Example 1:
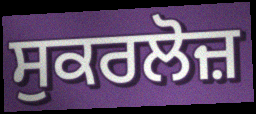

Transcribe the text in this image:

ਸੁਕਰਲੋਜ਼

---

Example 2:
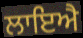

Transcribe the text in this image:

ਲਾਇਐ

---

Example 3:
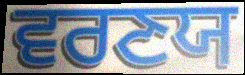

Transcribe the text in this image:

ਵਰਣਯ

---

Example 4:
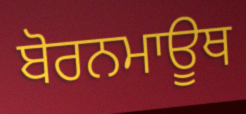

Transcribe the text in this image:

ਬੋਰਨਮਾਊਥ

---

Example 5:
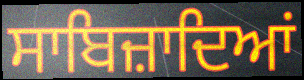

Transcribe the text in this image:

ਸਾਬਿਜ਼ਾਦਿਆਂ